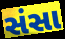
સંસા